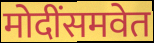
मोदींसमवेत